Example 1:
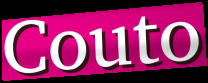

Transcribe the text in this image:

Couto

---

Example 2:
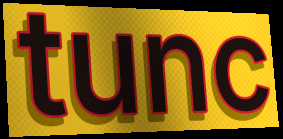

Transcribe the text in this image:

tunc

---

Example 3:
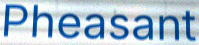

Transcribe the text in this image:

Pheasant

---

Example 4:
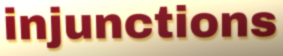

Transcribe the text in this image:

injunctions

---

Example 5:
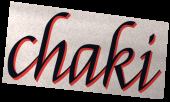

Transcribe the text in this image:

chaki